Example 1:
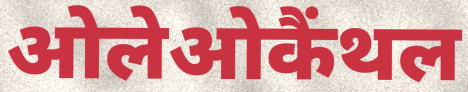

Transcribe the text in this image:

ओलेओकैंथल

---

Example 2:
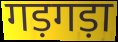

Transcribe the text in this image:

गड़गड़ा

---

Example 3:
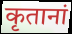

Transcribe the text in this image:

कृतानां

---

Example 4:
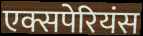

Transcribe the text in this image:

एक्सपेरियंस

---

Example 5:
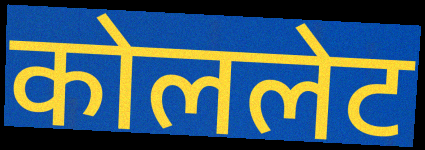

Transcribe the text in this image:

कोललेट